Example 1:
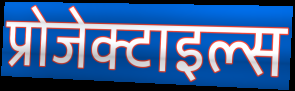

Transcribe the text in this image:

प्रोजेक्टाइल्स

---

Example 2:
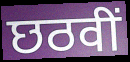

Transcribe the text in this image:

छठवीं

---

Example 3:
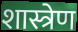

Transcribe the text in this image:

शास्त्रेण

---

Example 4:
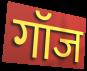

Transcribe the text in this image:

गॉज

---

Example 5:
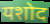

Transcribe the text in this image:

यशोद